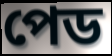
পেড